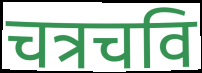
चत्रचवि